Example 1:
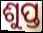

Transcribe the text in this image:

ଶୁପ୍ତ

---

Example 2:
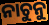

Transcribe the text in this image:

ନାଚୁନୁ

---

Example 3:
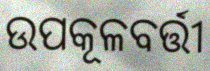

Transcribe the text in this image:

ଉପକୂଳବର୍ତ୍ତୀ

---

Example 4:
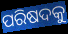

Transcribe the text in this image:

ପରିଷଦକୁ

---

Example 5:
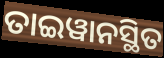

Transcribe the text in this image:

ତାଇୱାନସ୍ଥିତ